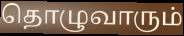
தொழுவாரும்